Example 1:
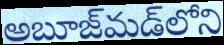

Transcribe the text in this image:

అబూజ్‌మడ్‌లోని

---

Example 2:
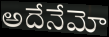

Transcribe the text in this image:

అదేనేమో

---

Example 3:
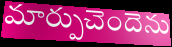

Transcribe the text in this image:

మార్పుచెందెను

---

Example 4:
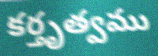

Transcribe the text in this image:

కర్తృత్వము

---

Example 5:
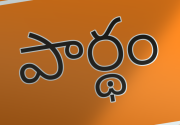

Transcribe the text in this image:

పార్థం